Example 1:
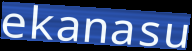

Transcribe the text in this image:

ekanasu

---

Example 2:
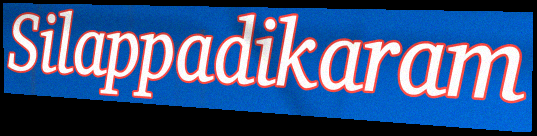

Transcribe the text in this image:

Silappadikaram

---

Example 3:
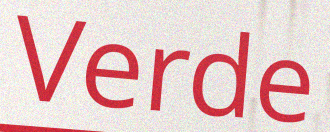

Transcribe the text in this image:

Verde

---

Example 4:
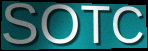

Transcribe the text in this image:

SOTC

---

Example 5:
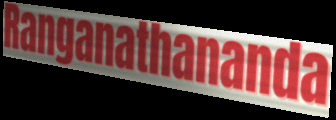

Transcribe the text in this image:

Ranganathananda